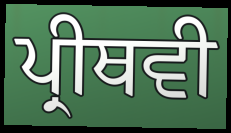
ਪ੍ਰੀਥਵੀ